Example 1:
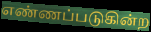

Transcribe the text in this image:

எண்ணப்படுகின்ற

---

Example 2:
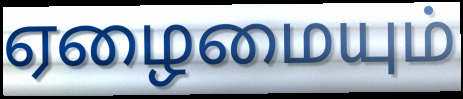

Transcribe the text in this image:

ஏழைமையும்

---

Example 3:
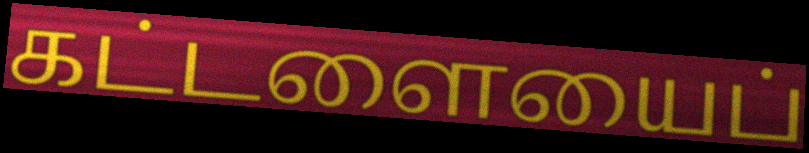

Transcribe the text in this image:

கட்டளையைப்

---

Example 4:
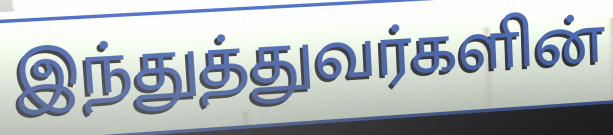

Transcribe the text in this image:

இந்துத்துவர்களின்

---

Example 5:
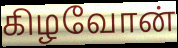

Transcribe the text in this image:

கிழவோன்